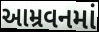
આમ્રવનમાં